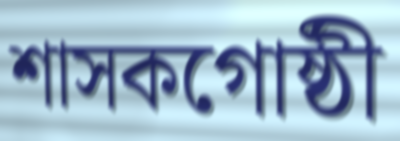
শাসকগোষ্ঠী